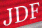
JDF